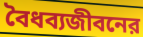
বৈধব্যজীবনের